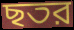
ছতর